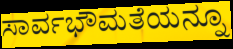
ಸಾರ್ವಭೌಮತೆಯನ್ನೂ